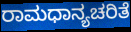
ರಾಮಧಾನ್ಯಚರಿತೆ